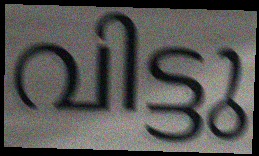
വിട്ടു